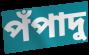
পঁপাদু